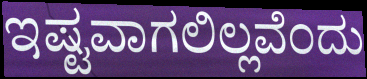
ಇಷ್ಟವಾಗಲಿಲ್ಲವೆಂದು